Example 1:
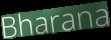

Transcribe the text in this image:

Bharana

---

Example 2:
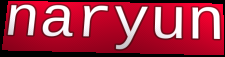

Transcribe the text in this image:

naryun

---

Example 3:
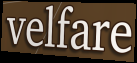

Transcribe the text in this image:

velfare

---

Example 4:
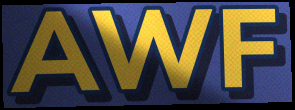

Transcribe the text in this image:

AWF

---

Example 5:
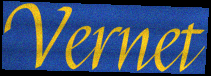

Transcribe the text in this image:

Vernet